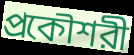
প্রকৌশরী